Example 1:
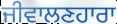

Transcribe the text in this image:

ਜੀਵਾਲਣਹਾਰਾ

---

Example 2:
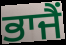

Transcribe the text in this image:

ਭਾਜੈਂ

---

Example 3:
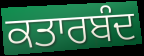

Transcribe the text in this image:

ਕਤਾਰਬੰਦ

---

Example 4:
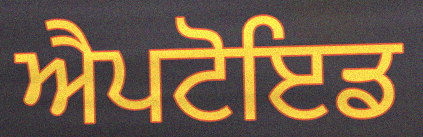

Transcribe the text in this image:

ਐਪਟੋਇਡ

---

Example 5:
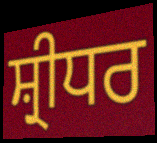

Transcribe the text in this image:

ਸ਼੍ਰੀਧਰ